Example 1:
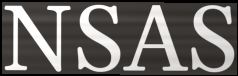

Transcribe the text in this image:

NSAS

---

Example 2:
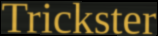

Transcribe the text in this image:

Trickster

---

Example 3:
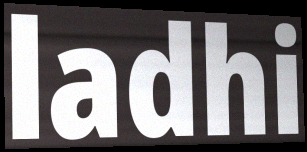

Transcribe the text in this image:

ladhi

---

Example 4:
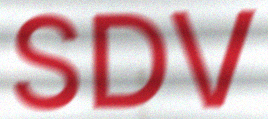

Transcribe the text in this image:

SDV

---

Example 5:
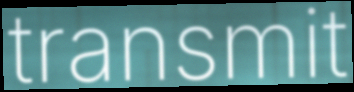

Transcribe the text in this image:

transmit